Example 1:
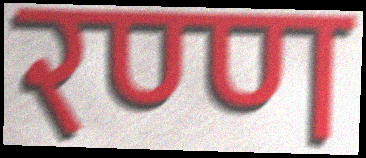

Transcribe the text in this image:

रण्ण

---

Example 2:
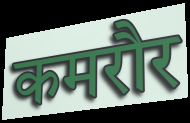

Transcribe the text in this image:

कमरौर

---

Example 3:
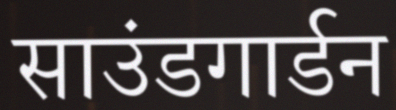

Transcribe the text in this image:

साउंडगार्डन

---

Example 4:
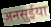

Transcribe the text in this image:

अनसुईया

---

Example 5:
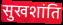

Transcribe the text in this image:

सुखशांति